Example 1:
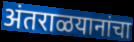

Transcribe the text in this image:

अंतराळयानांचा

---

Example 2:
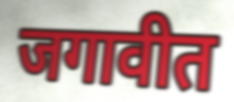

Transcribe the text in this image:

जगावीत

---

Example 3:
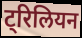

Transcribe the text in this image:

ट्रिलियन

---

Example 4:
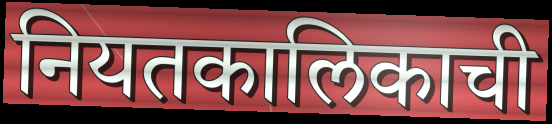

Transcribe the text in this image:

नियतकालिकाची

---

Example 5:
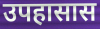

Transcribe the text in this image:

उपहासास